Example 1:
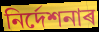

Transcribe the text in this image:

নিৰ্দেশনাৰ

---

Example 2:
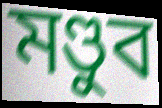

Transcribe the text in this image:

মণ্ডুব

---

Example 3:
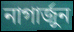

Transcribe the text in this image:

নাগাৰ্জুন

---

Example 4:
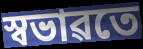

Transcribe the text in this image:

স্বভাৱতে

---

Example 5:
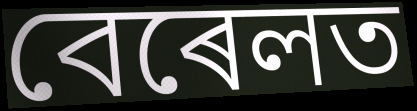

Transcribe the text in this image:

বেৰেলত